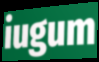
iugum